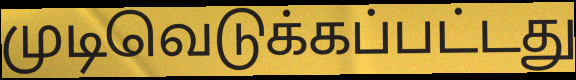
முடிவெடுக்கப்பட்டது